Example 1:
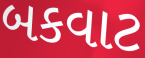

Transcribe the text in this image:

બકવાટ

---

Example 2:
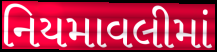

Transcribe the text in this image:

નિયમાવલીમાં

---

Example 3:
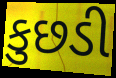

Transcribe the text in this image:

કુછડી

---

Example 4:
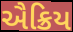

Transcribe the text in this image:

ઐક્રિય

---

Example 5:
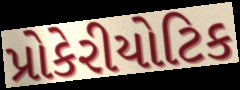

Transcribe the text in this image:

પ્રોકેરીયોટિક